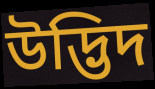
উদ্ভিদ